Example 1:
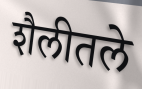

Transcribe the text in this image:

शैलीतले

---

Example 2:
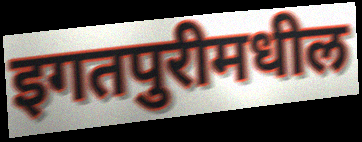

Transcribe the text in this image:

इगतपुरीमधील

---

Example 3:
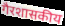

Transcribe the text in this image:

गैरशासकीय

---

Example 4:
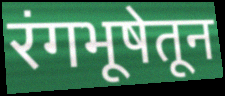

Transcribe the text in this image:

रंगभूषेतून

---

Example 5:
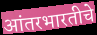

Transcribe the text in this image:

आंतरभारतीचे